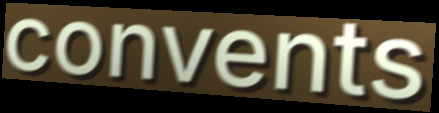
convents